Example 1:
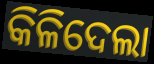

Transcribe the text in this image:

କିଳିଦେଲା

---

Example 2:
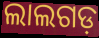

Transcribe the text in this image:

ଲାଲଗଡ଼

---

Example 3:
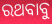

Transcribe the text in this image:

ରଥବାବୁ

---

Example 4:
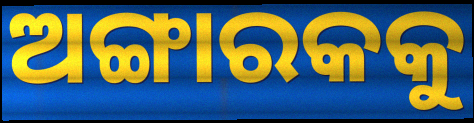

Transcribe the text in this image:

ଅଙ୍ଗାରକକୁ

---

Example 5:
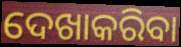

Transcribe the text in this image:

ଦେଖାକରିବା